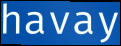
havay